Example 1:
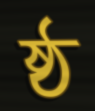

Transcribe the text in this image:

ষ্ঠ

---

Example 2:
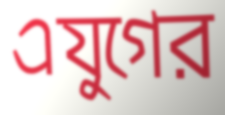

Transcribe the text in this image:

এযুগের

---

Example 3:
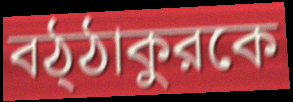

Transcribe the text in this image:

বঠ্ঠাকুরকে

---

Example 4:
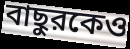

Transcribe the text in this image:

বাছুরকেও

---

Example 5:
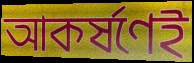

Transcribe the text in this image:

আকর্ষণেই